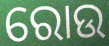
ରୋଉ